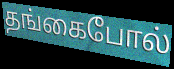
தங்கைபோல்